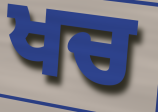
ਖਚ